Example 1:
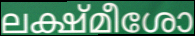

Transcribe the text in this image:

ലക്ഷ്മീശോ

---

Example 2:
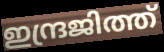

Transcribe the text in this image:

ഇന്ദ്രജിത്ത്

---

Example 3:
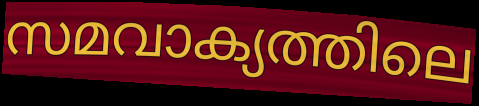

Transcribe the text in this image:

സമവാക്യത്തിലെ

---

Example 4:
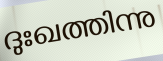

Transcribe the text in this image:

ദുഃഖത്തിന്നു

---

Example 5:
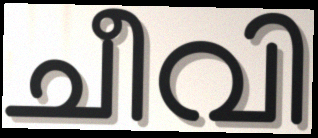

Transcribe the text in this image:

ചീവി